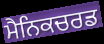
ਮੈਨਿਕਚਰਡ